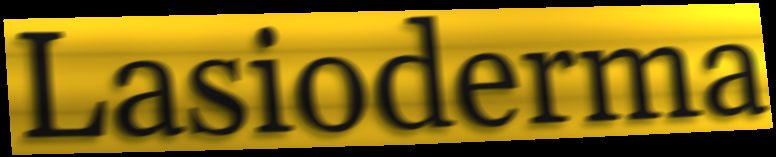
Lasioderma